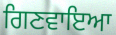
ਗਿਣਵਾਇਆ